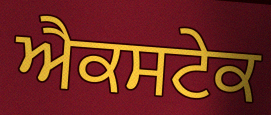
ਐਕਸਟੇਕ